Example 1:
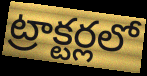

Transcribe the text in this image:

ట్రాక్టర్లలో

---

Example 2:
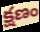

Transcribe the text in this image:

క్షణం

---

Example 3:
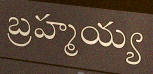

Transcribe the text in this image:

బ్రహ్మయ్య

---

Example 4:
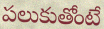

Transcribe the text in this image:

పలుకుతోంటే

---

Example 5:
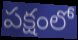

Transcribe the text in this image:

పక్షంలో